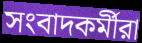
সংবাদকর্মীরা